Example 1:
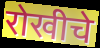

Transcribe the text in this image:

रोखीचे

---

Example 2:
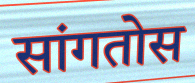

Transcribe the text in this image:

सांगतोस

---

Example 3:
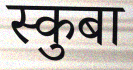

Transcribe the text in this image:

स्कुबा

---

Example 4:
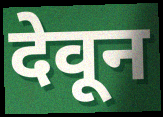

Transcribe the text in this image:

देवून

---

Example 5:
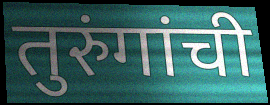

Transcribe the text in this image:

तुरुंगांची